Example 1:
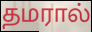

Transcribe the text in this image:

தமரால்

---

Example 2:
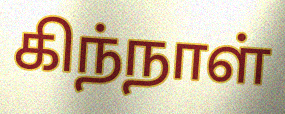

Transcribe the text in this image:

கிந்நாள்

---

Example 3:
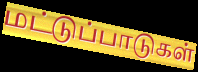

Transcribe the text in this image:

மட்டுப்பாடுகள்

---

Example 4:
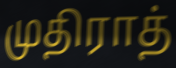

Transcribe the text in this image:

முதிராத்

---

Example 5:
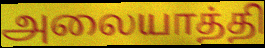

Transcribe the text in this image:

அலையாத்தி